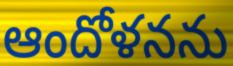
ఆందోళనను